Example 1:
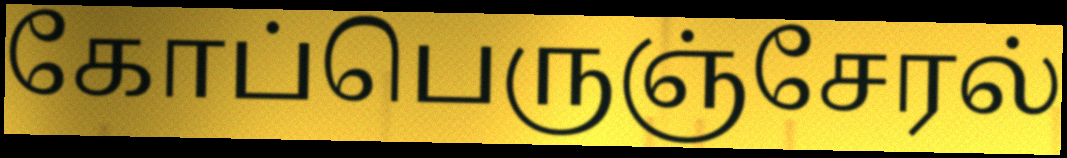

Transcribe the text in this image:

கோப்பெருஞ்சேரல்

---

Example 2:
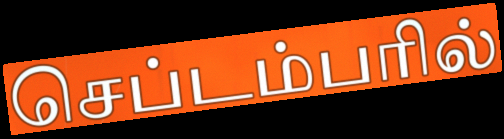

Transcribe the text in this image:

செப்டம்பரில்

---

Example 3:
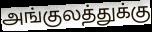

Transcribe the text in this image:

அங்குலத்துக்கு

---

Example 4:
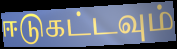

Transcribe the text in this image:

ஈடுகட்டவும்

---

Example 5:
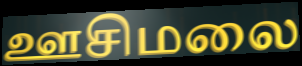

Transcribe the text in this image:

ஊசிமலை